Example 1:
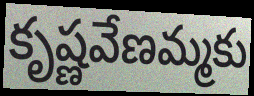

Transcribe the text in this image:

కృష్ణవేణమ్మకు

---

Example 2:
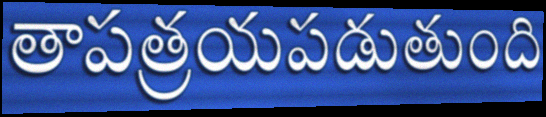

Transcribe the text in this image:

తాపత్రయపడుతుంది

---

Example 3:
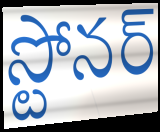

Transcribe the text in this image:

స్టోనర్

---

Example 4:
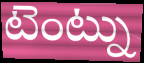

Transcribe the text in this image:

టెంట్ను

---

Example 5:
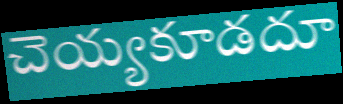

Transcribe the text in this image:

చెయ్యకూడదూ